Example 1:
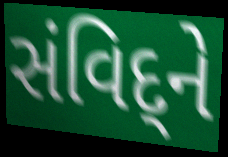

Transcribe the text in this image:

સંવિદ્‌ને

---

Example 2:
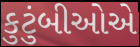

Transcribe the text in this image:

કુટુંબીઓએ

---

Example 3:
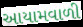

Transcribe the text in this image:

આયામવાળી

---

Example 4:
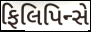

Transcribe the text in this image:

ફિલિપિન્સે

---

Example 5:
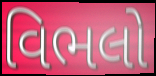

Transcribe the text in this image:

વિભલો